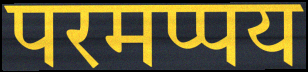
परमप्पय